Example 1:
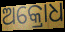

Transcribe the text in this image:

ଅକ୍ରୋଧ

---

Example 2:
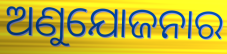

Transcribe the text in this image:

ଅଣୁଯୋଜନାର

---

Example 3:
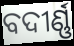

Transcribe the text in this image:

ବଦୀର୍ଣ୍ଣ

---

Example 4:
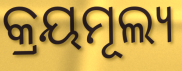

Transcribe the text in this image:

କ୍ରୟମୂଲ୍ୟ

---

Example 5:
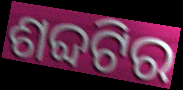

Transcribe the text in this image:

ଶବ୍ଦଟିର